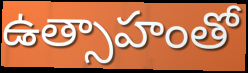
ఉత్సాహంతో